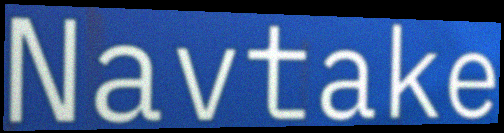
Navtake